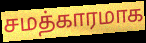
சமத்காரமாக